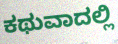
ಕಥುವಾದಲ್ಲಿ